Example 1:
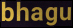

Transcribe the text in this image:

bhagu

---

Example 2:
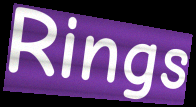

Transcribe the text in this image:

Rings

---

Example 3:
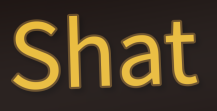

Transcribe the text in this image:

Shat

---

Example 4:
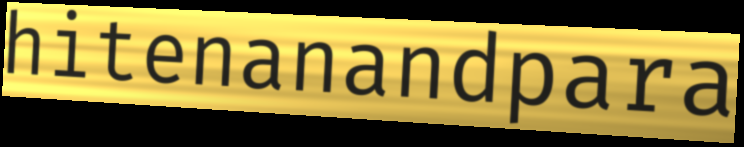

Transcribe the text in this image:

hitenanandpara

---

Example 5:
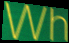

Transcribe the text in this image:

Wh